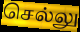
செல்லு